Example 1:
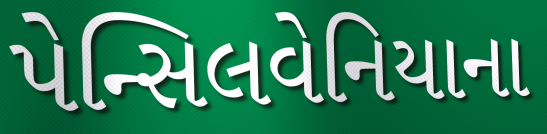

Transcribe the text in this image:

પેન્સિલવેનિયાના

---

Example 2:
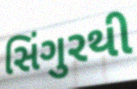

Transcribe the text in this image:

સિંગુરથી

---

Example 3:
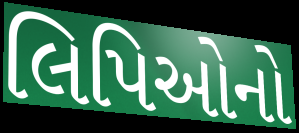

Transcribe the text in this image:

લિપિઓનો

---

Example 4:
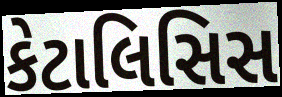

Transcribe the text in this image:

કેટાલિસિસ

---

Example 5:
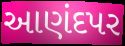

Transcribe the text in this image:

આણંદપર